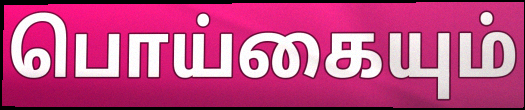
பொய்கையும்